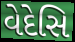
વેદેસિ